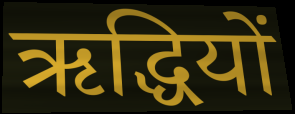
ऋद्धियों